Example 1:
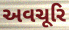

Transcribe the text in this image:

અવચૂરિ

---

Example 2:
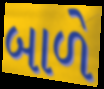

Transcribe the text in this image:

બાળે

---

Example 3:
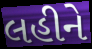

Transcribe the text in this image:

લહીને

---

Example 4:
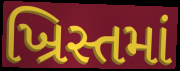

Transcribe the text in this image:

ખ્રિસ્તમાં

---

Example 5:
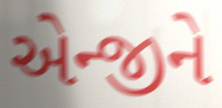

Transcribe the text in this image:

એન્જીને